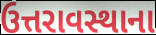
ઉત્તરાવસ્થાના